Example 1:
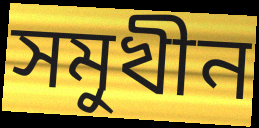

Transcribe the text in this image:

সমুখীন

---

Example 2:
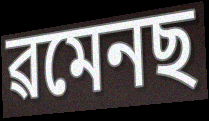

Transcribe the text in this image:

ৱমেনছ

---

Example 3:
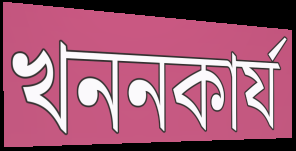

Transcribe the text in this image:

খননকাৰ্য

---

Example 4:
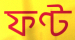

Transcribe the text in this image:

ফণ্ট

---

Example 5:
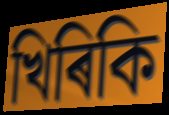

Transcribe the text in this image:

খিৰিকি